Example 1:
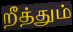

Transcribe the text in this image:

றீத்தும்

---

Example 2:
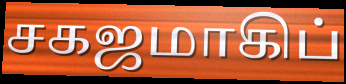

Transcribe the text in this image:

சகஜமாகிப்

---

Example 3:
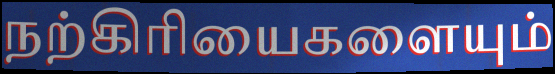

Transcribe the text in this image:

நற்கிரியைகளையும்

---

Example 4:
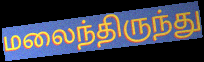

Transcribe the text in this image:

மலைந்திருந்து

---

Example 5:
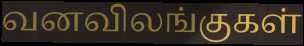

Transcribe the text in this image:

வனவிலங்குகள்